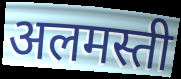
अलमस्ती